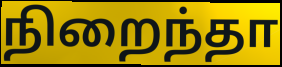
நிறைந்தா